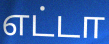
எட்டா